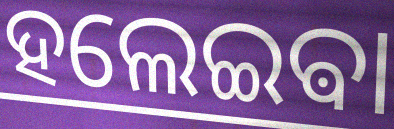
ହଲେଇଵା